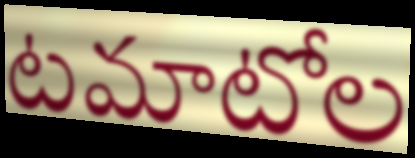
టమాటోల